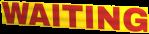
WAITING